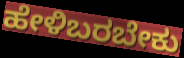
ಹೇಳಿಬರಬೇಕು